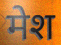
मेश